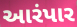
આરંપાર